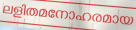
ലളിതമനോഹരമായ